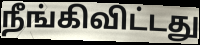
நீங்கிவிட்டது